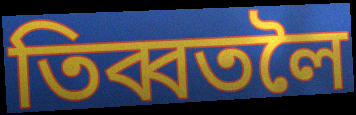
তিব্বতলৈ